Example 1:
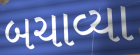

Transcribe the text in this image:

બચાવ્યા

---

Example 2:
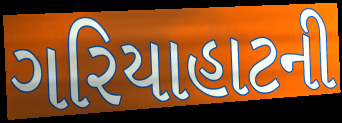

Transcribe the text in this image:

ગરિયાહાટની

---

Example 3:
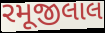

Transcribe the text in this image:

રમૂજીલાલ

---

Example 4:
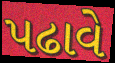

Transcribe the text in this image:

પઢાવે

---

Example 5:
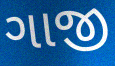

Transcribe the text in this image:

ગાજી